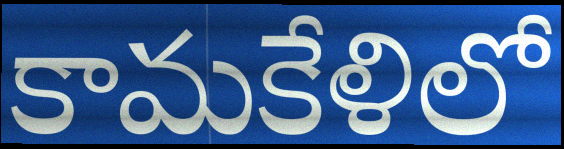
కామకేళిలో